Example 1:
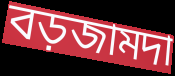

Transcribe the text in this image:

বড়জামদা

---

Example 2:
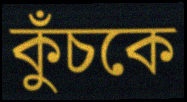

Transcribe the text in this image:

কুঁচকে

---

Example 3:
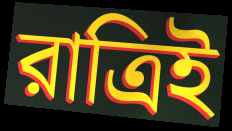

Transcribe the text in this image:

রাত্রিই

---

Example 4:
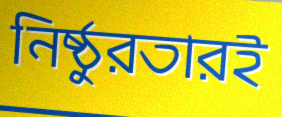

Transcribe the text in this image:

নিষ্ঠুরতারই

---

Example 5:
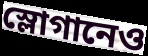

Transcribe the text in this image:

স্লোগানেও